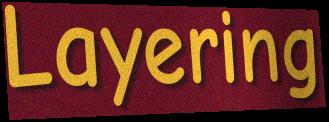
Layering